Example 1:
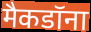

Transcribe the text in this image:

मैकडॉना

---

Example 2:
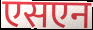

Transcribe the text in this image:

एसएन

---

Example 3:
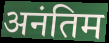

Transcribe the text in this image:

अनंतिम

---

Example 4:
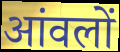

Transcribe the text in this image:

आंवलों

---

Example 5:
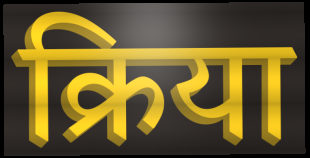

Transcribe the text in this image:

क्रिया